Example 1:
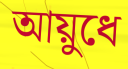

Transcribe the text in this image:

আয়ুধে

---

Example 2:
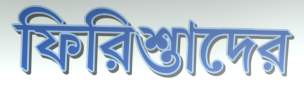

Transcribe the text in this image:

ফিরিশ্তাদের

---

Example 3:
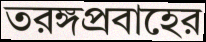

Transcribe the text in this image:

তরঙ্গপ্রবাহের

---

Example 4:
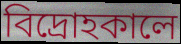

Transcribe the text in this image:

বিদ্রোহকালে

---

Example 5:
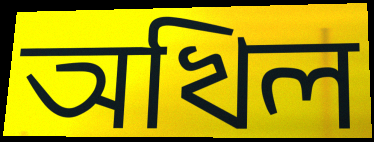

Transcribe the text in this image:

অখিল